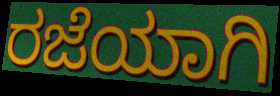
ರಜೆಯಾಗಿ